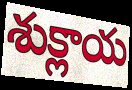
శుక్లాయ